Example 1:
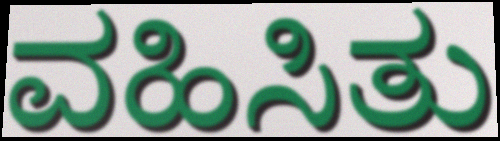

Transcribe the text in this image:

ವಹಿಸಿತು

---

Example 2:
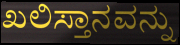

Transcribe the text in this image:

ಖಲಿಸ್ತಾನವನ್ನು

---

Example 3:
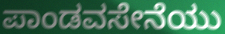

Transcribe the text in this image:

ಪಾಂಡವಸೇನೆಯು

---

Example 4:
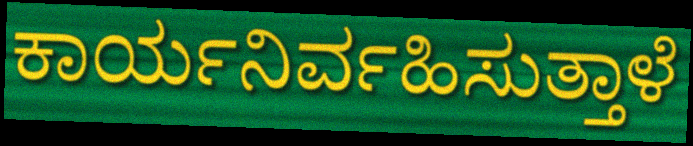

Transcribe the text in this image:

ಕಾರ್ಯನಿರ್ವಹಿಸುತ್ತಾಳೆ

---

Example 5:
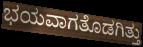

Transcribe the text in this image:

ಭಯವಾಗತೊಡಗಿತ್ತು